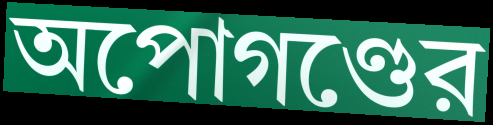
অপোগণ্ডের